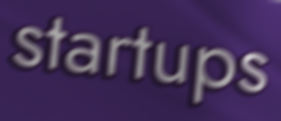
startups